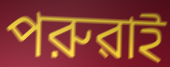
পৰুৱাই